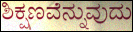
ಶಿಕ್ಷಣವೆನ್ನುವುದು